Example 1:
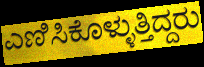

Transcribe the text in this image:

ಎಣಿಸಿಕೊಳ್ಳುತ್ತಿದ್ದರು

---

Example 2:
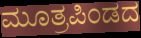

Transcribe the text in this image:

ಮೂತ್ರಪಿಂಡದ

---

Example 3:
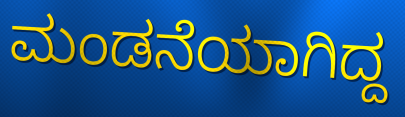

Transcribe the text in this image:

ಮಂಡನೆಯಾಗಿದ್ದ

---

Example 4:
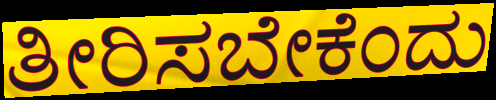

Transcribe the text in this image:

ತೀರಿಸಬೇಕೆಂದು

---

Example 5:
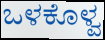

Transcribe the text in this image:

ಒಳಕೊಳ್ವ